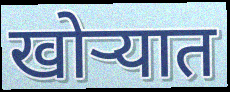
खोऱ्यात